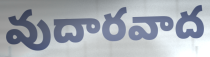
వుదారవాద